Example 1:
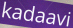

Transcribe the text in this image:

kadaavi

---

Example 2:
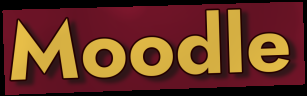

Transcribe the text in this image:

Moodle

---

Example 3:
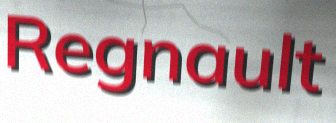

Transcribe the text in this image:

Regnault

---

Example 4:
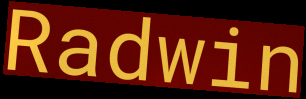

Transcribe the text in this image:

Radwin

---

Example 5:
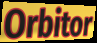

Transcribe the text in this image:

Orbitor